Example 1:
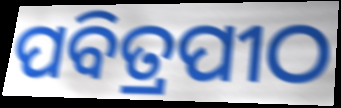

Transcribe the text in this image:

ପବିତ୍ରପୀଠ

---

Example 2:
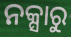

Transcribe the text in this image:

ନକ୍ସାରୁ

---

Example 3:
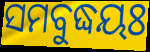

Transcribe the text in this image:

ସମବୁଦ୍ଧୟଃ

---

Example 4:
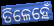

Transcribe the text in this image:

ତିଳେହେଁ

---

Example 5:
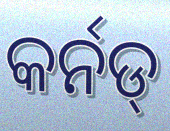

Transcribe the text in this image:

କର୍ନଡ୍